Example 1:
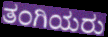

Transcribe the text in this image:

ತಂಗಿಯರು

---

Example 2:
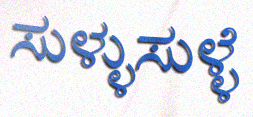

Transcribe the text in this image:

ಸುಳ್ಳುಸುಳ್ಳೆ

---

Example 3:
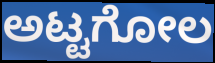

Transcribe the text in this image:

ಅಟ್ಟಗೋಲ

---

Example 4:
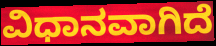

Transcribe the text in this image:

ವಿಧಾನವಾಗಿದೆ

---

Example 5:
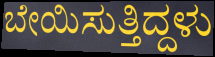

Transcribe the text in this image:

ಬೇಯಿಸುತ್ತಿದ್ದಳು